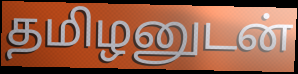
தமிழனுடன்